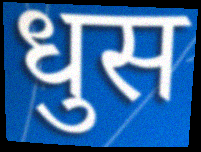
धुस